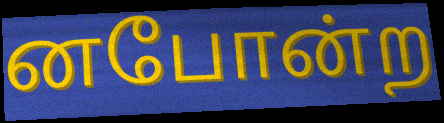
னபோன்ற